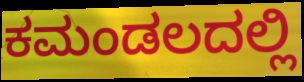
ಕಮಂಡಲದಲ್ಲಿ